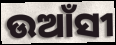
ଉଆଁସୀ